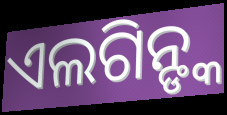
ଏଲଗିନ୍ଙ୍କ